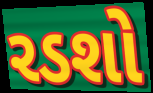
રડશો